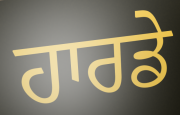
ਹਾਰਡੇ